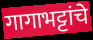
गागाभट्टांचे